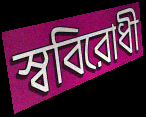
স্ববিরোধী